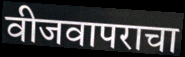
वीजवापराचा